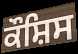
ਕੌਸ਼ਿਸ